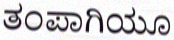
ತಂಪಾಗಿಯೂ